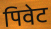
पिवेट